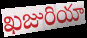
ఖజురియా